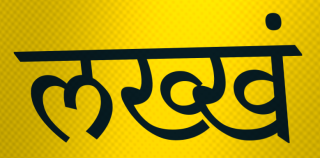
लख्खं